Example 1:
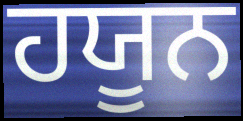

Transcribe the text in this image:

ਹਯੂਨ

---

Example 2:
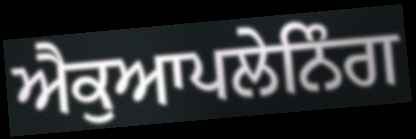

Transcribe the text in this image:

ਐਕੁਆਪਲੇਨਿੰਗ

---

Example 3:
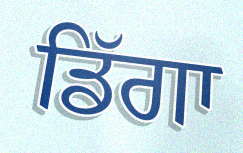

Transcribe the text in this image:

ਡਿੱਗਾ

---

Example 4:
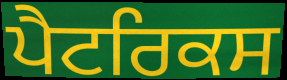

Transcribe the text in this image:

ਪੈਟਰਿਕਸ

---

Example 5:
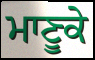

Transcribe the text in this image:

ਮਾਣੂਕੇ